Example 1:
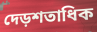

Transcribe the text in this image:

দেড়শতাধিক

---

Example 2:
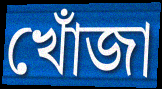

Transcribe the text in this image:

খোঁজা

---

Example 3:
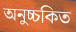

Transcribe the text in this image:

অনুচ্চকিত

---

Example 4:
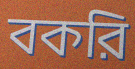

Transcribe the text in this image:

বকরি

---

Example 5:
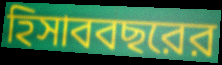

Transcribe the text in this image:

হিসাববছরের